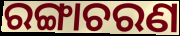
ରଙ୍ଗାଚରଣ